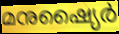
മനുഷ്യൈർ